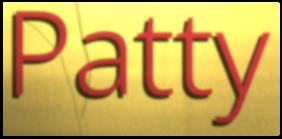
Patty